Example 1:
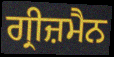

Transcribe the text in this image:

ਗ੍ਰੀਜ਼ਮੈਨ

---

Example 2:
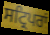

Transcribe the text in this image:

ਸਟ੍ਰਿਪਰਾਂ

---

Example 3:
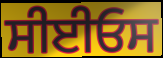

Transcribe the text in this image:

ਸੀਈਓਸ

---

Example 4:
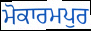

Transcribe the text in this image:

ਮੋਕਾਰਮਪੁਰ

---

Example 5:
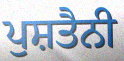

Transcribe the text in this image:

ਪੁਸ਼ਤੈਨੀ